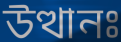
উত্থানঃ